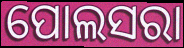
ପୋଲସରା